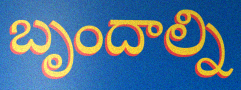
బృందాల్ని